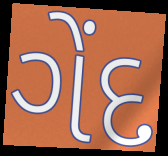
ગેંદ